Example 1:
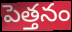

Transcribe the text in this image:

పెత్తనం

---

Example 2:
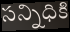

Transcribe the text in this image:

సన్నిధికి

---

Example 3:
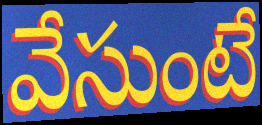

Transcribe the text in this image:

వేసుంటే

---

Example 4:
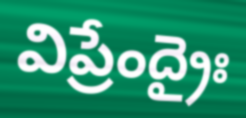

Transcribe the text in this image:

విప్రేంద్రైః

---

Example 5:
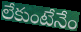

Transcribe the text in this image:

లేకుంటేనేం